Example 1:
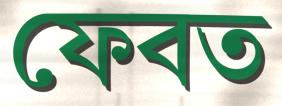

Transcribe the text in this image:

ফেবত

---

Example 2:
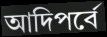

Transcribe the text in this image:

আদিপর্বে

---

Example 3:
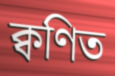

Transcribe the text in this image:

ক্বণিত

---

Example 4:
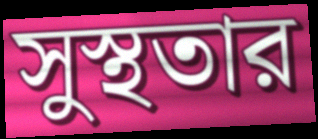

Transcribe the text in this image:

সুস্থতার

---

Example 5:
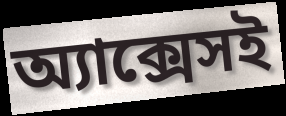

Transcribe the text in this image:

অ্যাক্সেসই